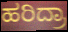
ಹರಿದ್ರಾ